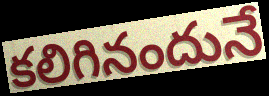
కలిగినందునే